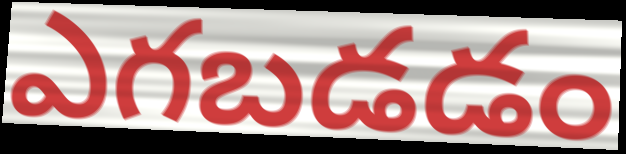
ఎగబడడం